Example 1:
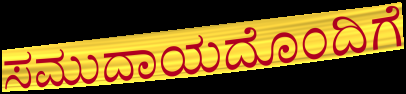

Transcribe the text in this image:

ಸಮುದಾಯದೊಂದಿಗೆ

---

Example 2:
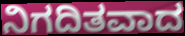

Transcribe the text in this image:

ನಿಗದಿತವಾದ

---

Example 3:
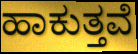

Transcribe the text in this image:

ಹಾಕುತ್ತವೆ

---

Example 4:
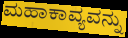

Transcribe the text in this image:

ಮಹಾಕಾವ್ಯವನ್ನು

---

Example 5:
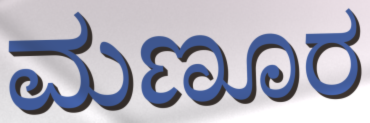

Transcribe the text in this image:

ಮಣೂರ